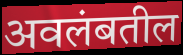
अवलंबतील